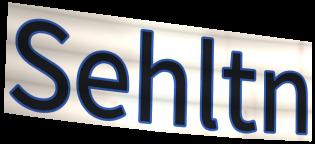
Sehltn